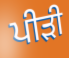
ਪੀੜੀ